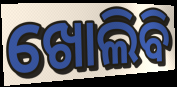
ଖୋଲିବି